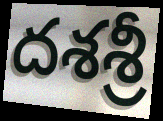
దశశ్రీ